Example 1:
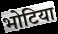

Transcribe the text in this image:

भोटिया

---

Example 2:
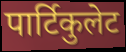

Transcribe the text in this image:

पार्टिकुलेट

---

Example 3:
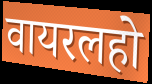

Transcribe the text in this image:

वायरलहो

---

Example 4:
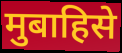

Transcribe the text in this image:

मुबाहिसे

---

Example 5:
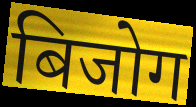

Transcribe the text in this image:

बिजोग